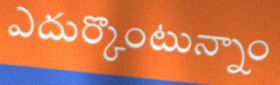
ఎదుర్కొంటున్నాం